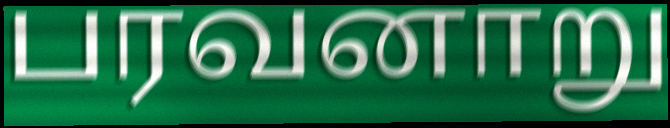
பரவனாறு